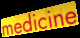
medicine